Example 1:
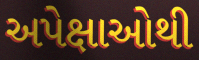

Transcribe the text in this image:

અપેક્ષાઓથી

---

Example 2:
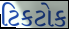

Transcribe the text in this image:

ટિકટોક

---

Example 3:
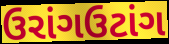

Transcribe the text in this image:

ઉરાંગઉટાંગ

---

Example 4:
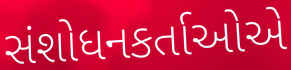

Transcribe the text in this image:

સંશોધનકર્તાઓએ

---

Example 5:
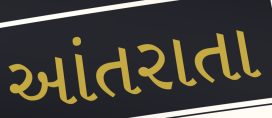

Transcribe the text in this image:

આંતરાતા